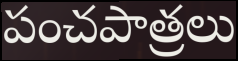
పంచపాత్రలు